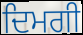
ਦਿਮਗੀ